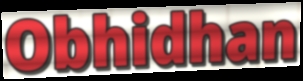
Obhidhan